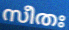
സീതഃ